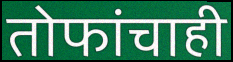
तोफांचाही